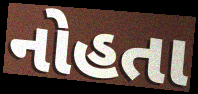
નોહતા